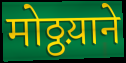
मोठ्ठय़ाने